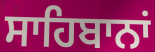
ਸਾਹਿਬਾਨਾਂ